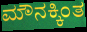
ಮೌನಕ್ಕಿಂತ